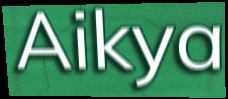
Aikya